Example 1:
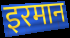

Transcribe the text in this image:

इरमान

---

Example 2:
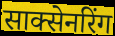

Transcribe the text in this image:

साक्सेनरिंग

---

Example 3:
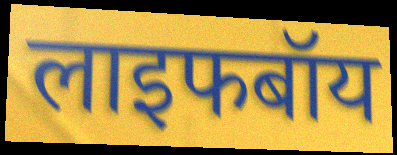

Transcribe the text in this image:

लाइफबॉय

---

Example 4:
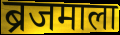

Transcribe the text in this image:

ब्रजमाला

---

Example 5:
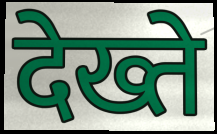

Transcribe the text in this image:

देख्ते